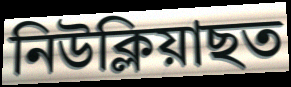
নিউক্লিয়াছত